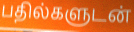
பதில்களுடன்